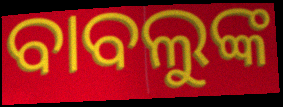
ବାବଲୁଙ୍କ